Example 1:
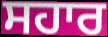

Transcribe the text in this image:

ਸਹਾਰ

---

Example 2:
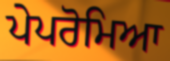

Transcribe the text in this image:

ਪੇਪਰੋਮਿਆ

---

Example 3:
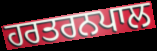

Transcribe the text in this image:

ਹਰਤਰਨਪਾਲ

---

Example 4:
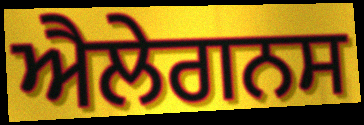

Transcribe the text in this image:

ਐਲੇਗਨਸ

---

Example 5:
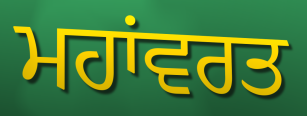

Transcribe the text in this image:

ਮਹਾਂਵਰਤ